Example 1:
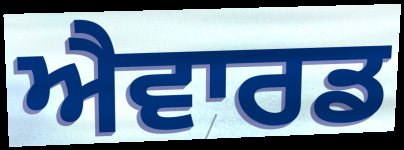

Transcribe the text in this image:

ਐਵਾਰਡ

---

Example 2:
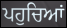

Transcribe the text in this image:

ਪਹੁਚਿਆਂ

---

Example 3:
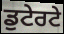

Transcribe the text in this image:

ਡੁਟੇਰਟੇ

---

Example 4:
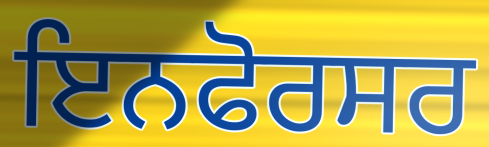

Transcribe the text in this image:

ਇਨਫੋਰਸਰ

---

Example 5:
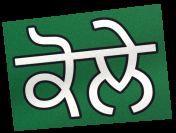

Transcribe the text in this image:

ਕੋਲੇ